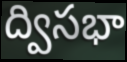
ద్విసభా